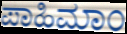
ಪಾಹಿಮಾಂ